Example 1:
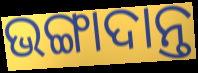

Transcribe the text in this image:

ଭଙ୍ଗାଦାନ୍ତ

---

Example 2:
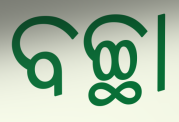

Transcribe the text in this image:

ବଚ୍ଛା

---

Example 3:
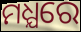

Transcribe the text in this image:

ମଧ୍ଯରେ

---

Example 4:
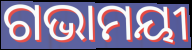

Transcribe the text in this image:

ଗଭାମୟୀ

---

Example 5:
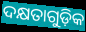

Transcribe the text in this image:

ଦକ୍ଷତାଗୁଡ଼ିକ